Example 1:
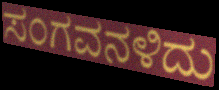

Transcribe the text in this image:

ಸಂಗವನಳಿದು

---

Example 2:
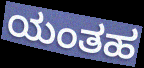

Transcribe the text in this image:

ಯಂತಹ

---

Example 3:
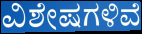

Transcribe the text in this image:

ವಿಶೇಷಗಳಿವೆ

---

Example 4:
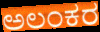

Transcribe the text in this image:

ಅಲಂಕರ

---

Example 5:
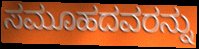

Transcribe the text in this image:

ಸಮೂಹದವರನ್ನು